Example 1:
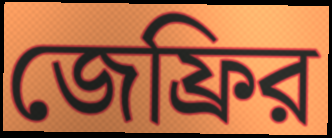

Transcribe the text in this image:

জেফ্রির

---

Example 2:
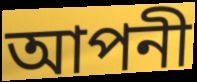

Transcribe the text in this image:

আপনী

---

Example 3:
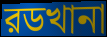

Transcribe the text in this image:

রডখানা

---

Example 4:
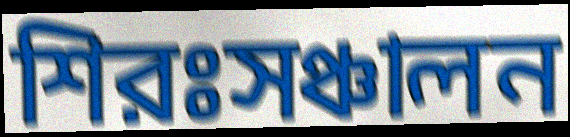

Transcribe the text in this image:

শিরঃসঞ্চালন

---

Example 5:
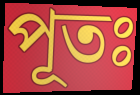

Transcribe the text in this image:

পূতঃ